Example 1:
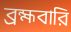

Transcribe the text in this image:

ব্রহ্মবারি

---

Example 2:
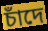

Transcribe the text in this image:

চাঁদে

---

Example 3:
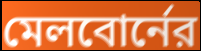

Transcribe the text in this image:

মেলবোর্নের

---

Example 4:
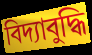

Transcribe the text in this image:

বিদ্যাবুদ্ধি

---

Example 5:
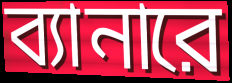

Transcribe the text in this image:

ব্যানারে